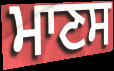
ਮਾਣਸ